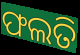
ଫଲତି